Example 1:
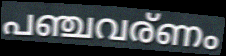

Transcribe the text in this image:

പഞ്ചവര്ണം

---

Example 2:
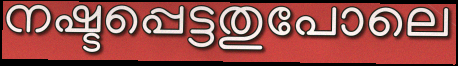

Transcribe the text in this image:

നഷ്ടപ്പെട്ടതുപോലെ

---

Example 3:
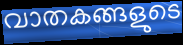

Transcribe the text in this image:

വാതകങ്ങളുടെ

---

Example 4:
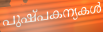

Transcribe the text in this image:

പുഷ്പകന്യകൾ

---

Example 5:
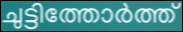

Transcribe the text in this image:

ചുട്ടിത്തോർത്ത്